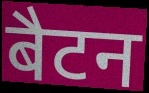
बैटन